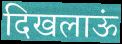
दिखलाऊं